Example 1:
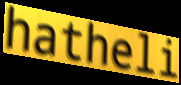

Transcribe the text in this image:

hatheli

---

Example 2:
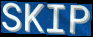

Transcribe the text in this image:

SKIP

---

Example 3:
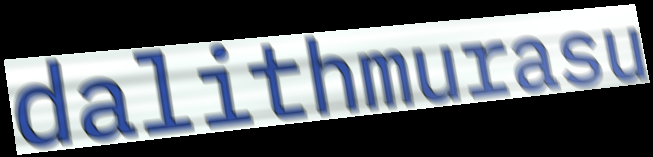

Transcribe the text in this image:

dalithmurasu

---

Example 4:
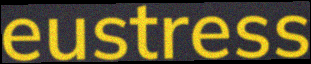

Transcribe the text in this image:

eustress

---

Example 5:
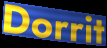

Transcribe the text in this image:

Dorrit